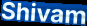
Shivam